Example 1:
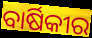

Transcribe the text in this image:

ବାର୍ଷିକୀର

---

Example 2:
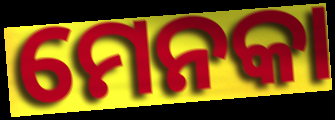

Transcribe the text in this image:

ମେନକା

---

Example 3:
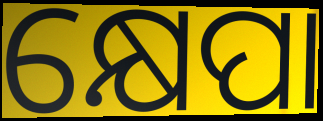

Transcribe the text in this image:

କ୍ଷେପା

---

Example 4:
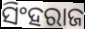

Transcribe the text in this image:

ସିଂହରାଜ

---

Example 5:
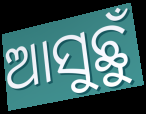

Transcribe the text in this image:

ଆସୁଛୁଁ